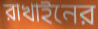
রাখাইনের